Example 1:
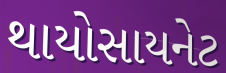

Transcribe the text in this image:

થાયોસાયનેટ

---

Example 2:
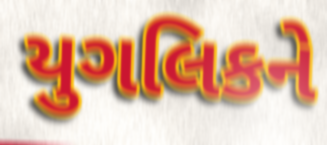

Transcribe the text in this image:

યુગલિકને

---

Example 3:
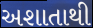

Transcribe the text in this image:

અશાતાથી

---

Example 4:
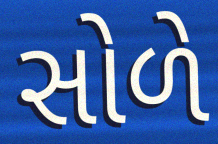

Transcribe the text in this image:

સોળે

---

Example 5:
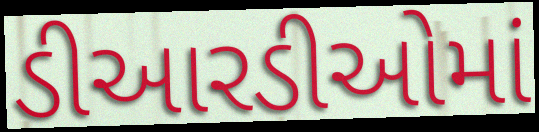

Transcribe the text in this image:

ડીઆરડીઓમાં